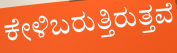
ಕೇಳಿಬರುತ್ತಿರುತ್ತವೆ